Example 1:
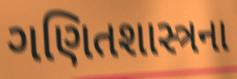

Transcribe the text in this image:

ગણિતશાસ્ત્રના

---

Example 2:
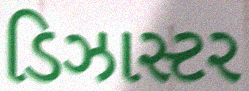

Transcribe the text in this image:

ડિઝાસ્ટર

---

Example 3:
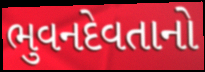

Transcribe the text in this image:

ભુવનદેવતાનો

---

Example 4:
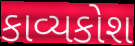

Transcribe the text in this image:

કાવ્યકોશ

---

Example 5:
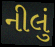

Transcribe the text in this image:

નીલું